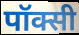
पॉक्सी